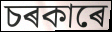
চৰকাৰে